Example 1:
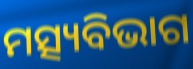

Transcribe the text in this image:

ମତ୍ସ୍ୟବିଭାଗ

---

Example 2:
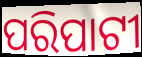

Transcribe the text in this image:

ପରିପାଟୀ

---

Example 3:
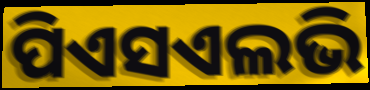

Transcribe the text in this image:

ପିଏସଏଲଭି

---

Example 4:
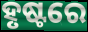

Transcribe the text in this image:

ହୃଷ୍ଟରେ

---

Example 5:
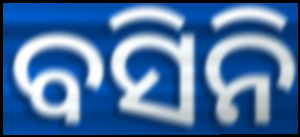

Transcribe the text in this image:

ବସିନି